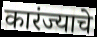
कारंज्याचे